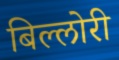
बिल्लोरी